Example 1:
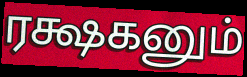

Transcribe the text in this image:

ரக்ஷகனும்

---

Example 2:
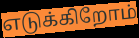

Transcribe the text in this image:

எடுக்கிறோம்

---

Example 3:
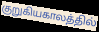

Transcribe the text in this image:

குறுகியகாலத்தில்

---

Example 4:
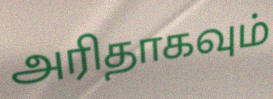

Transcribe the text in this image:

அரிதாகவும்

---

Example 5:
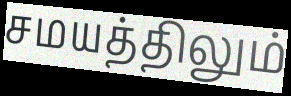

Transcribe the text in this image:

சமயத்திலும்